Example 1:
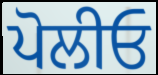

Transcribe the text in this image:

ਪੋਲੀਓ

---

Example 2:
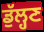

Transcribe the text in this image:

ਡੁੱਲ੍ਹਣ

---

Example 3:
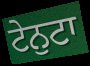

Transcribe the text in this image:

ਟੇਨੁਟਾ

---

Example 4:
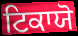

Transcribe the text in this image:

ਟਿਕਾਯੋ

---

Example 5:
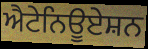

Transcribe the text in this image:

ਐਟੇਨਿਊਏਸ਼ਨ